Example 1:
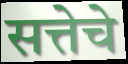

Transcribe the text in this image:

सत्तेचे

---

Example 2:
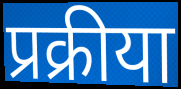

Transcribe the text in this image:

प्रक्रीया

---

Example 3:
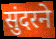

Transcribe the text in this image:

सुंदरने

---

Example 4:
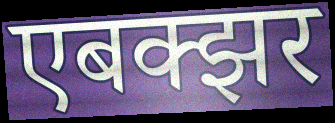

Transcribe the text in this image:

एबक्झर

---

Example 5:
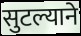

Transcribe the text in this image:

सुटल्याने